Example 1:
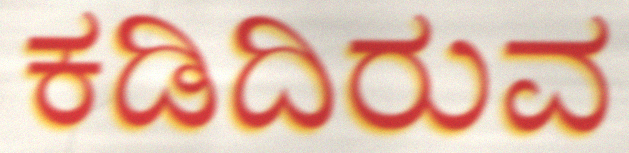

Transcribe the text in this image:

ಕಡಿದಿರುವ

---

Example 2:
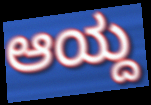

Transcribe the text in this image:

ಆಯ್ದ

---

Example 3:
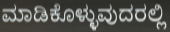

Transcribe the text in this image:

ಮಾಡಿಕೊಳ್ಳುವುದರಲ್ಲಿ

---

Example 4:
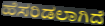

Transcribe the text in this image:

ಹೆಸರಿಡಲಾಗಿದೆ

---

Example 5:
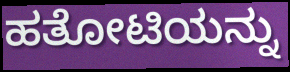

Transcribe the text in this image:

ಹತೋಟಿಯನ್ನು